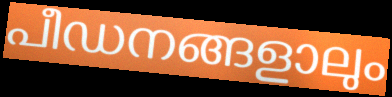
പീഡനങ്ങളാലും